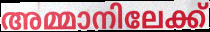
അമ്മാനിലേക്ക്